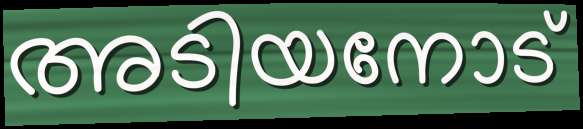
അടിയനോട്